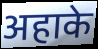
अहाके